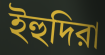
ইহুদিরা